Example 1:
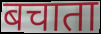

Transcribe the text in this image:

बचाता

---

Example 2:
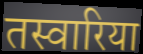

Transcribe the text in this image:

तस्वारिया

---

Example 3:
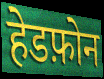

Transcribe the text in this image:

हेडफ़ोन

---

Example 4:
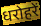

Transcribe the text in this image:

धरोहरें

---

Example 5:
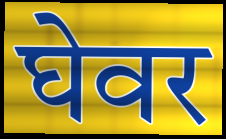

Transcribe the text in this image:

घेवर